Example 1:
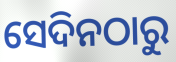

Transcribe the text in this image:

ସେଦିନଠାରୁ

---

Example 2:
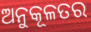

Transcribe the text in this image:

ଅନୁକୂଳତର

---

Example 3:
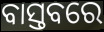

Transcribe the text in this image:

ବାସ୍ତବରେ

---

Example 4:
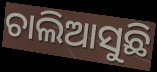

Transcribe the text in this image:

ଚାଲିଆସୁଛି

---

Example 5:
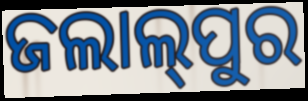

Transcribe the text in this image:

ଜଲାଲ୍‍ପୁର